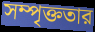
সম্পৃক্ততার